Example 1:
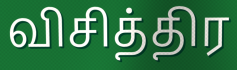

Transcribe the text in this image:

விசித்திர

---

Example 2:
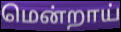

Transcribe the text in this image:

மென்றாய்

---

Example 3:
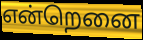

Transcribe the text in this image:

என்றெனை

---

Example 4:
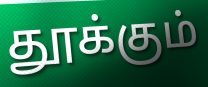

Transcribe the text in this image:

தூக்கும்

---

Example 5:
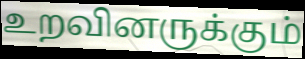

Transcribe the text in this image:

உறவினருக்கும்